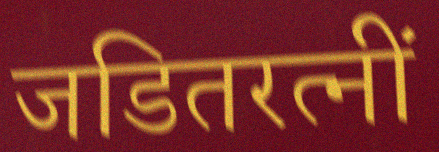
जडितरत्नीं